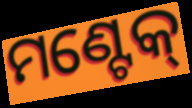
ମଣ୍ଟେକ୍